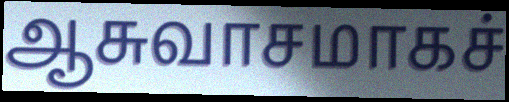
ஆசுவாசமாகச்